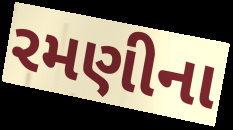
રમણીના